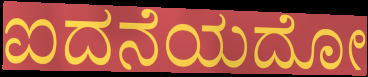
ಐದನೆಯದೋ